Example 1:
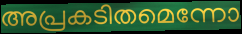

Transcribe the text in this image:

അപ്രകടിതമെന്നോ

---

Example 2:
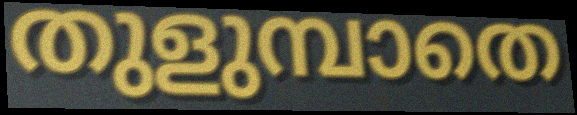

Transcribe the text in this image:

തുളുമ്പാതെ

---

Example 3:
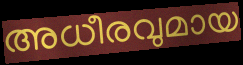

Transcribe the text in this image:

അധീരവുമായ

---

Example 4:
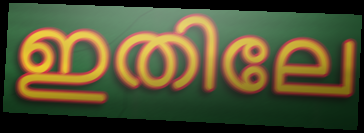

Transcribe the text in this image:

ഇതിലേ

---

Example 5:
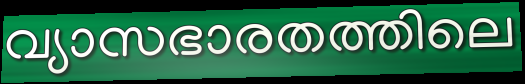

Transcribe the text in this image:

വ്യാസഭാരതത്തിലെ